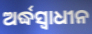
ଅର୍ଦ୍ଧସ୍ୱାଧୀନ